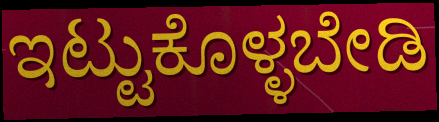
ಇಟ್ಟುಕೊಳ್ಳಬೇಡಿ